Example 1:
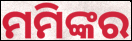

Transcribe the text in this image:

ମମିଙ୍କର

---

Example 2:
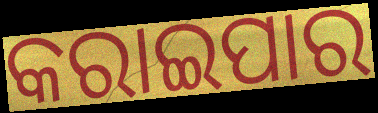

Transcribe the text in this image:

କରାଇପାର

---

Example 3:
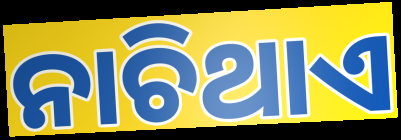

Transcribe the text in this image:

ନାଚିଥାଏ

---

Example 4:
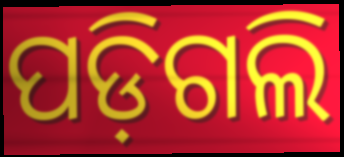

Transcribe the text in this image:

ପଡ଼ିଗଲି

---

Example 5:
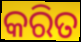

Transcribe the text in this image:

କରିତ